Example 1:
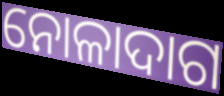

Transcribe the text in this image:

ନୋଳାଦାଗ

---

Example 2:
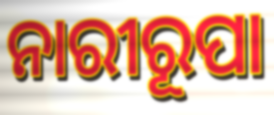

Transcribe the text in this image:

ନାରୀରୂପା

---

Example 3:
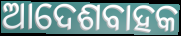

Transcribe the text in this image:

ଆଦେଶବାହକ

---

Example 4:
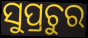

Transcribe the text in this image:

ସୁପ୍ରଚୁର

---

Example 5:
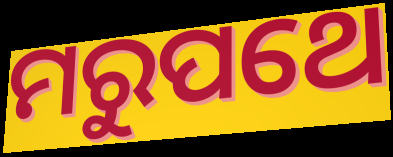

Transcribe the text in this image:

ମରୁପଥେ